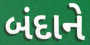
બંદાને